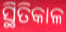
ସ୍ଥିତିକାଳ